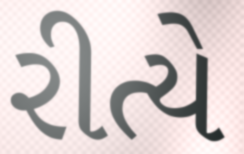
રીત્યે